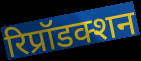
रिप्रॉडक्शन